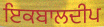
ਇਕਬਾਲਦੀਪ